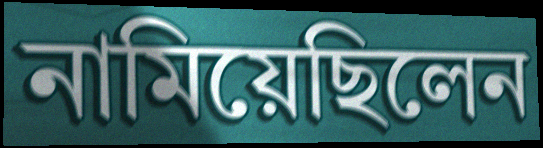
নামিয়েছিলেন